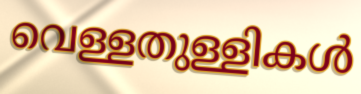
വെള്ളതുള്ളികൾ